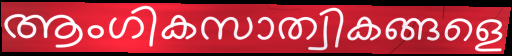
ആംഗികസാത്വികങ്ങളെ